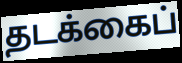
தடக்கைப்